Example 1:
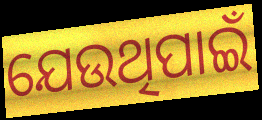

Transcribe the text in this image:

ଯେଉଥିପାଇଁ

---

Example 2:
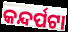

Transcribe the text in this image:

କନ୍ଦର୍ପଟା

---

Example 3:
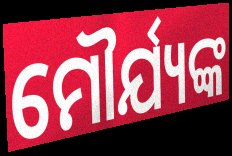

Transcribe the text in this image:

ମୌର୍ଯ୍ୟଙ୍କ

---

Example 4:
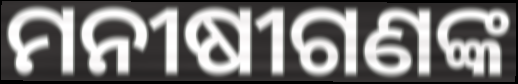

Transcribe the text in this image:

ମନୀଷୀଗଣଙ୍କ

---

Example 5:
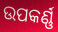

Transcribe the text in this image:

ଉପକର୍ଣ୍ଣ